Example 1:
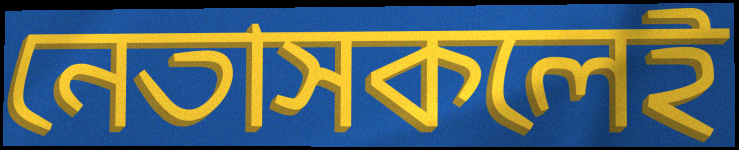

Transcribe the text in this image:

নেতাসকলেই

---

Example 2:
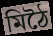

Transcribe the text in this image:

মিঠৈ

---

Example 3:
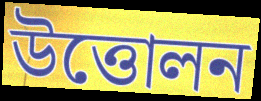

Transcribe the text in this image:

উত্তোলন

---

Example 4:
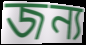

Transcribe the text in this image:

জন্য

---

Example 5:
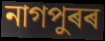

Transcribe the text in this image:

নাগপুৰৰ